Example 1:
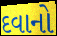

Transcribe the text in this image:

દવાનો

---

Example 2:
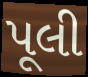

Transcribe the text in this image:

પૂલી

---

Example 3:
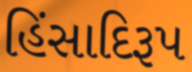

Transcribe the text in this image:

હિંસાદિરૂપ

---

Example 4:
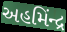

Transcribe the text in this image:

અહમિંન્દ્ર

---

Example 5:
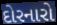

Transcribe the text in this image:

દોરનારો